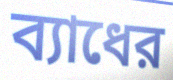
ব্যাধের